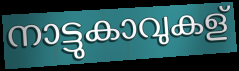
നാട്ടുകാവുകള്